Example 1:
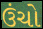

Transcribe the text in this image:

ઉંચો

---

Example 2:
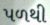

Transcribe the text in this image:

પળથી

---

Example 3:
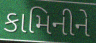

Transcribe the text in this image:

કામિનીને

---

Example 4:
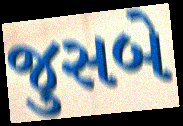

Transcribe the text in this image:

જુસબે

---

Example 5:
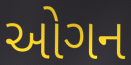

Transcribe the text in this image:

ઓગન